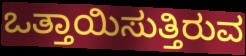
ಒತ್ತಾಯಿಸುತ್ತಿರುವ